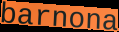
barnona